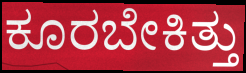
ಕೂರಬೇಕಿತ್ತು